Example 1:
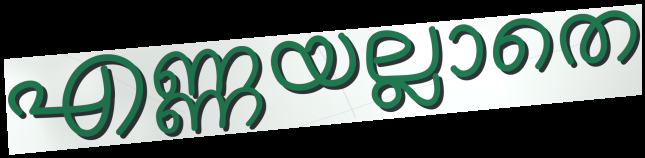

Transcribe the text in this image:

എണ്ണയല്ലാതെ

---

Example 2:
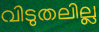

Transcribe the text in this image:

വിടുതലില്ല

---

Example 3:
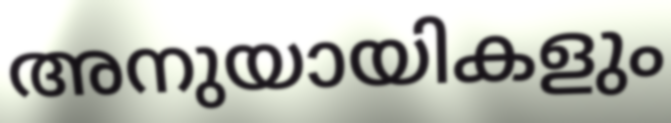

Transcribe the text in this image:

അനുയായികളും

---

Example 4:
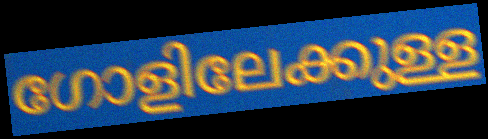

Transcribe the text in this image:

ഗോളിലേക്കുള്ള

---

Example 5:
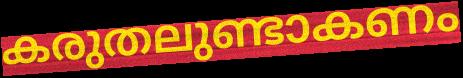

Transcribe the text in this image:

കരുതലുണ്ടാകണം